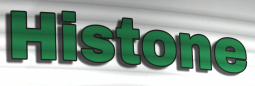
Histone